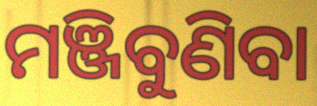
ମଞ୍ଜିବୁଣିବା